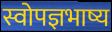
स्वोपज्ञभाष्य